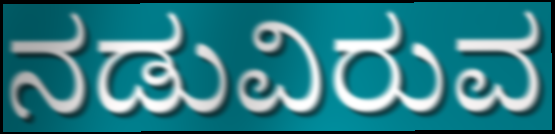
ನಡುವಿರುವ